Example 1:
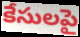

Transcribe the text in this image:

కేసులపై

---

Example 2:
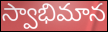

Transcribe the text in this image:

స్వాభిమాన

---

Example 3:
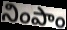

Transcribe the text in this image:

నింపాం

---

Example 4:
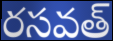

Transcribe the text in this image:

రసవత్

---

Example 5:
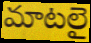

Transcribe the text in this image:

మాటలై